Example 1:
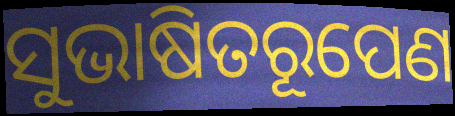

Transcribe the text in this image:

ସୁଭାଷିତରୂପେଣ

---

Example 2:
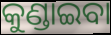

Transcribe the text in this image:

କୁଣ୍ଡାଇବା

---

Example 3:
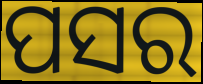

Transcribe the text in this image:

ପସର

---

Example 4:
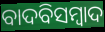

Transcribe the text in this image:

ବାଦବିସମ୍ବାଦ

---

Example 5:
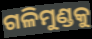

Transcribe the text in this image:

ଗଳିମୁଣ୍ଡକୁ